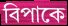
বিপাকে